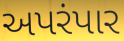
અપરંપાર